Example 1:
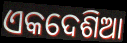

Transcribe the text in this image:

ଏକଦେଶିଆ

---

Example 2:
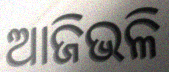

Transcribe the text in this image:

ଆଜିଭଳି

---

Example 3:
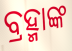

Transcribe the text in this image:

ବ୍ରହ୍ମାଙ୍କ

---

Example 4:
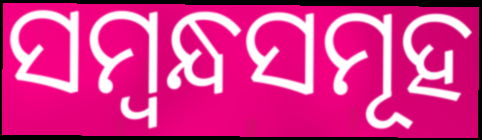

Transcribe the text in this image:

ସମ୍ୱନ୍ଧସମୂହ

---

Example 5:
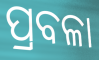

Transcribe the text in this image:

ପ୍ରବଳା